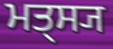
ਮਤ੍ਸ੍ਯ